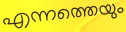
എന്നത്തെയും